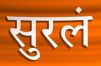
सुरलं